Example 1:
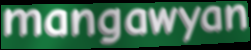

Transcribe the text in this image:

mangawyan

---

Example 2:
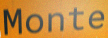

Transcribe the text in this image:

Monte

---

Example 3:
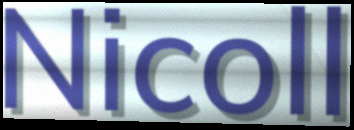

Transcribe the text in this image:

Nicoll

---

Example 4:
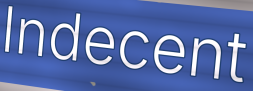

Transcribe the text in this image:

Indecent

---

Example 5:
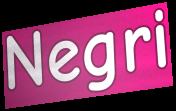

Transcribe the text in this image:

Negri